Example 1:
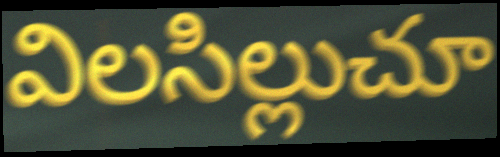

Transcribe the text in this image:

విలసిల్లుచూ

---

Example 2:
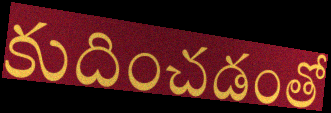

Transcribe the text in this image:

కుదించడంతో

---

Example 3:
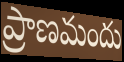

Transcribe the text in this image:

ప్రాణమందు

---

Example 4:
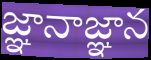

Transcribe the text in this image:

జ్ఞానాజ్ఞాన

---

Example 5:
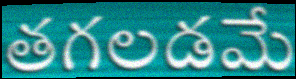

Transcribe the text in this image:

తగలడమే